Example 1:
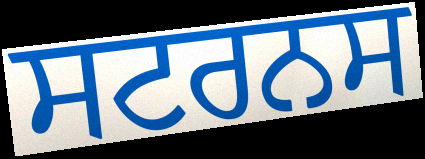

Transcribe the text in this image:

ਸਟਰਨਸ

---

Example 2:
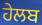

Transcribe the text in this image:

ਹੇਲਬ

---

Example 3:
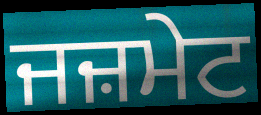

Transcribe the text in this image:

ਜਜ਼ਮੇਟ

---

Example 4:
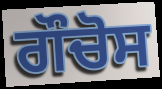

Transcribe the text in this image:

ਗੌਚੋਸ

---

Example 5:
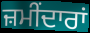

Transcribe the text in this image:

ਜ਼ਮੀਂਦਾਰਾਂ